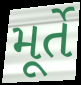
મૂર્તે